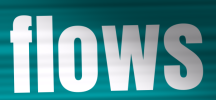
flows